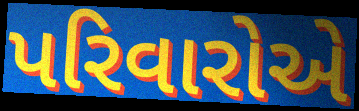
પરિવારોએ